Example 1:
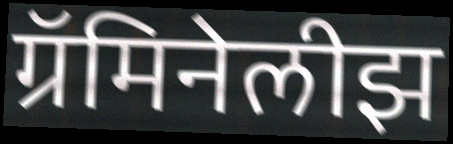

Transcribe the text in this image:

ग्रॅमिनेलीझ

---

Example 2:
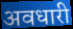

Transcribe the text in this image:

अवधारी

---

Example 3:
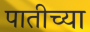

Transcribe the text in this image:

पातीच्या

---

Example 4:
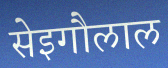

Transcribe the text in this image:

सेइगौलाल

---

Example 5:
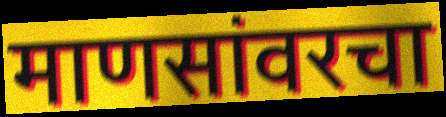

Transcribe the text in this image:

माणसांवरचा